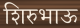
शिरुभाऊ